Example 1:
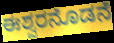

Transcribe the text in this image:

ಈಶ್ವರನೊಡನೆ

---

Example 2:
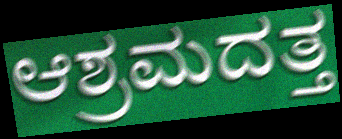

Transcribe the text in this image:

ಆಶ್ರಮದತ್ತ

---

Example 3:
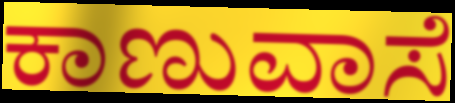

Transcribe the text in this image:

ಕಾಣುವಾಸೆ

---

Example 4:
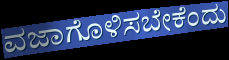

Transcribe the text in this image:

ವಜಾಗೊಳಿಸಬೇಕೆಂದು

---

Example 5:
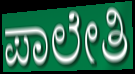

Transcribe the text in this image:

ಪಾಲೇತಿ